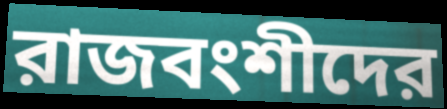
রাজবংশীদের